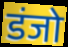
डंजो